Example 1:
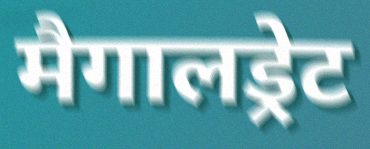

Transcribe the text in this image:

मैगालड्रेट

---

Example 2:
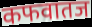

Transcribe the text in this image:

कफवातज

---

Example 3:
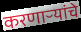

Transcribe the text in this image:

करणाऱ्यांचे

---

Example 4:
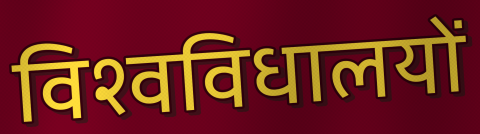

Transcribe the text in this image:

विश्वविधालयों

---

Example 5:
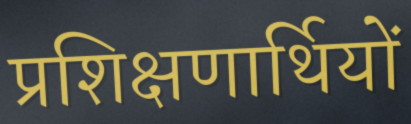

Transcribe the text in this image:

प्रशिक्षणार्थियों